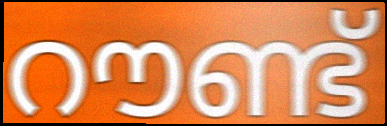
റൗണ്ട്